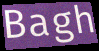
Bagh